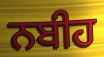
ਨਬੀਹ